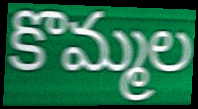
కొమ్మల